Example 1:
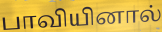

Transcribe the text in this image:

பாவியினால்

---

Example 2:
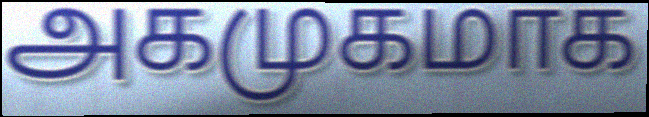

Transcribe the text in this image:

அகமுகமாக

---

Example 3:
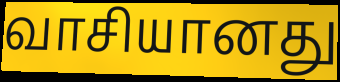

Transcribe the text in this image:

வாசியானது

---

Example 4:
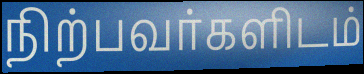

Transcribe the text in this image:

நிற்பவர்களிடம்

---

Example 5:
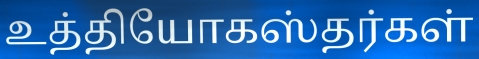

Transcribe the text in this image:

உத்தியோகஸ்தர்கள்